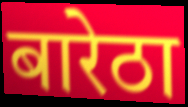
बारेठा